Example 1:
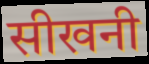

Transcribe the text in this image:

सीखनी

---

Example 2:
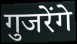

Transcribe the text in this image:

गुजरेंगे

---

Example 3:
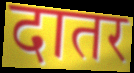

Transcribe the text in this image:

दातर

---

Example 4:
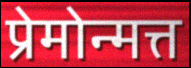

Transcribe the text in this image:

प्रेमोन्मत्त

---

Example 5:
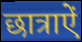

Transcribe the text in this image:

छात्राऐं